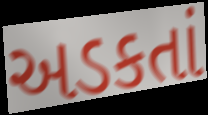
અડકતાં